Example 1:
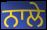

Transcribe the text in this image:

ਨਾਲੇ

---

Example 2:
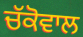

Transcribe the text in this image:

ਚੱਕੋਵਾਲ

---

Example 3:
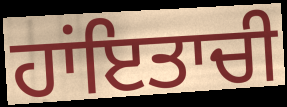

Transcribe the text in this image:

ਹਾਂਇਤਾਚੀ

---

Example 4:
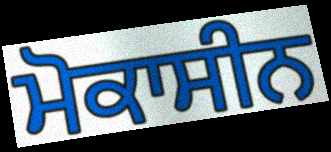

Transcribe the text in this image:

ਮੋਕਾਸੀਨ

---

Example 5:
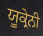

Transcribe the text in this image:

ਯੂਕ੍ਰੇਨੀ